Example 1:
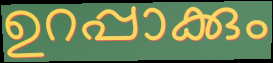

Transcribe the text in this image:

ഉറപ്പാക്കും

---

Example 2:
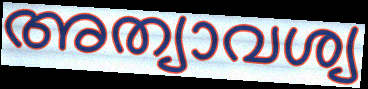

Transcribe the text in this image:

അത്യാവശ്യ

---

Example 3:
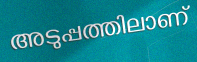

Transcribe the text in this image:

അടുപ്പത്തിലാണ്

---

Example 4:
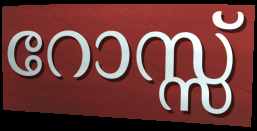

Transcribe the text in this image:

റോസ്സ്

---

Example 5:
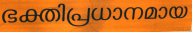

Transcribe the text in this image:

ഭക്തിപ്രധാനമായ